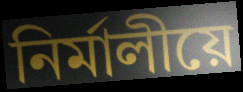
নিৰ্মালীয়ে